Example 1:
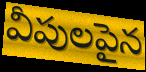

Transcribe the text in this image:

వీపులపైన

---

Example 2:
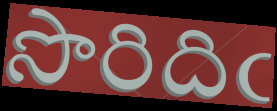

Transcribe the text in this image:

సొరిదిఁ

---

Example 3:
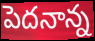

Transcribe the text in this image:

పెదనాన్న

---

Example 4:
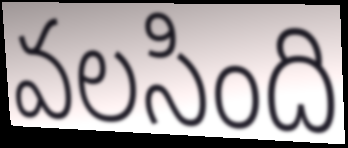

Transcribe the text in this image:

వలసింది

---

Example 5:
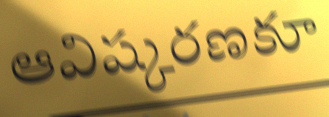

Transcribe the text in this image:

ఆవిష్కరణకూ